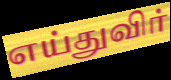
எய்துவிர்